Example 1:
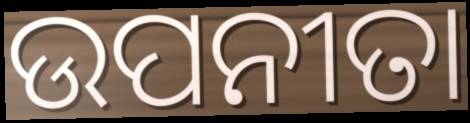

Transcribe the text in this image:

ଉପନୀତା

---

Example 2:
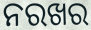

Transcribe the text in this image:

ନରଖର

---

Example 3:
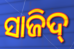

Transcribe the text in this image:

ସାଜିଦ୍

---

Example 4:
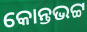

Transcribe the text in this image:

କୋନ୍ତଭଟ୍ଟ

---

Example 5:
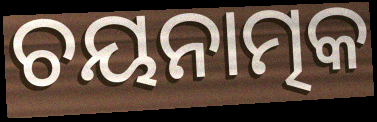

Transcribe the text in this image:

ଚୟନାତ୍ମକ